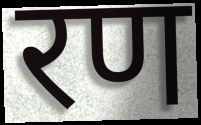
रण